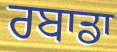
ਰਬਾਡਾ